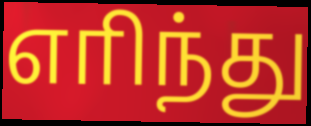
எரிந்து